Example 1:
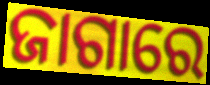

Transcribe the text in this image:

ଜାଗାରେ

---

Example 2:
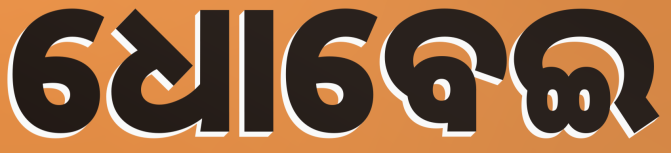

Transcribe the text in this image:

ଧୋବେଇ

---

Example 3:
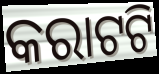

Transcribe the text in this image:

କରାଟଟି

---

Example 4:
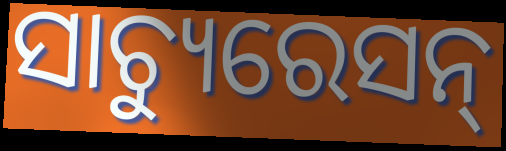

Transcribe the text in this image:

ସାଚ୍ୟୁରେସନ୍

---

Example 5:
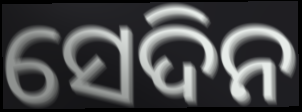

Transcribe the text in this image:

ସେଦିନ